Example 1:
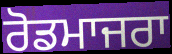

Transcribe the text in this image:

ਰੋਡਮਾਜਰਾ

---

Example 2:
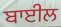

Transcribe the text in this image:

ਬਾਈਲ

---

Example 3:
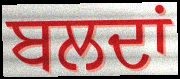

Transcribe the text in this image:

ਬਲਦਾਂ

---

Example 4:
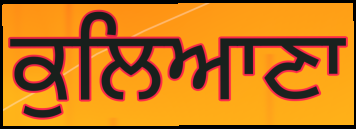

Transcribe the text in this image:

ਕੁਲਿਆਣਾ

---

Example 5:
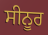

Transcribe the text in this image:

ਸੀਨੂਰ